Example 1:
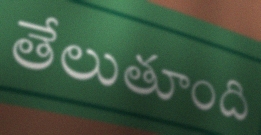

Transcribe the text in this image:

తేలుతూంది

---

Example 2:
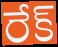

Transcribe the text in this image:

రేక్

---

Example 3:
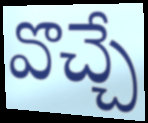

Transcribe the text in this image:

వొచ్చే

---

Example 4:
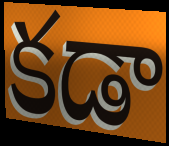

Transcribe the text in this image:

కడా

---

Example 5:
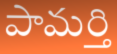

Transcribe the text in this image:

పామర్తి